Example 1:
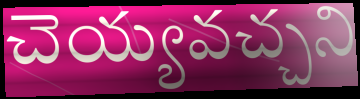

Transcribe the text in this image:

చెయ్యవచ్చని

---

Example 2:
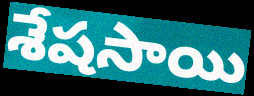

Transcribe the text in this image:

శేషసాయి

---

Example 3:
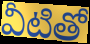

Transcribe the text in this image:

వీటితో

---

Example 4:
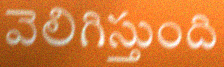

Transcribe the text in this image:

వెలిగిస్తుంది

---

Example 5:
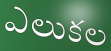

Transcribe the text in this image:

ఎలుకల